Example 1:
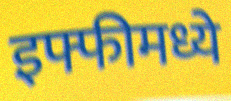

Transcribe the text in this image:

इफ्फीमध्ये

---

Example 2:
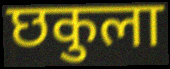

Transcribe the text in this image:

छकुला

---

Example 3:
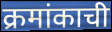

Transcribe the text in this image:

क्रमांकाची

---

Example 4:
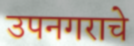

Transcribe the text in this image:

उपनगराचे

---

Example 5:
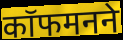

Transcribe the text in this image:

कॉफमनने